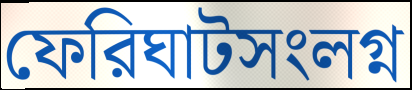
ফেরিঘাটসংলগ্ন